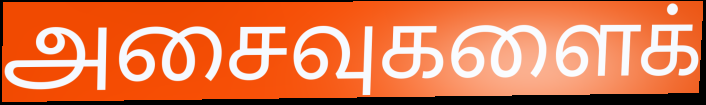
அசைவுகளைக்